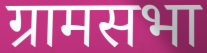
ग्रामसभा